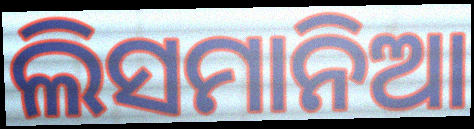
ଲିସମାନିଆ